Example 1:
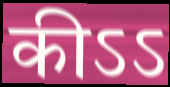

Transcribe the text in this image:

कीऽऽ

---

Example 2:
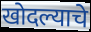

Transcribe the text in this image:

खोदल्याचे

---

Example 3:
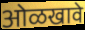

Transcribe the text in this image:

ओळखावे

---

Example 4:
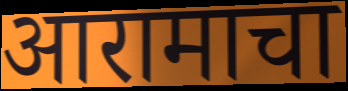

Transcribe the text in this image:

आरामाचा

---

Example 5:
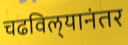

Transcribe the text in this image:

चढविल्यानंतर